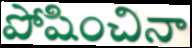
పోషించినా